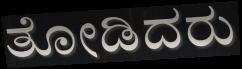
ತೋಡಿದರು